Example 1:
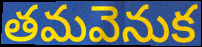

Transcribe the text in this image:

తమవెనుక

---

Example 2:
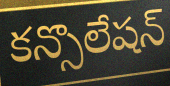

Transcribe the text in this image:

కన్సొలేషన్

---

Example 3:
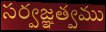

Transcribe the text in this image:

సర్వజ్ఞత్వము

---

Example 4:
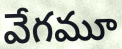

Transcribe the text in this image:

వేగమూ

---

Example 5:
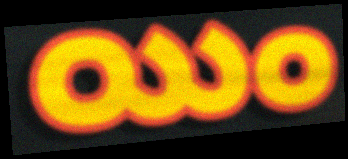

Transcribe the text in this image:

యిం